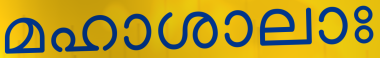
മഹാശാലാഃ